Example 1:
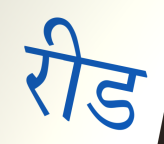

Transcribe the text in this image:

रीड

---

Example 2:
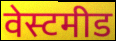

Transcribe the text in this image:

वेस्टमीड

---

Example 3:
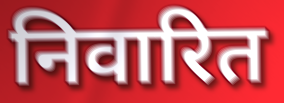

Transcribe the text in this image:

निवारित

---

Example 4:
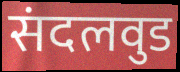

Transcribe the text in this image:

संदलवुड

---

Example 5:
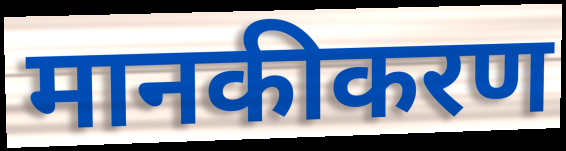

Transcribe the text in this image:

मानकीकरण